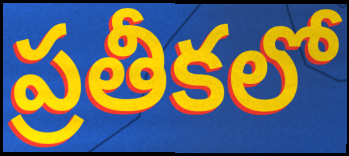
ప్రతీకలో